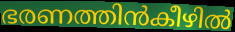
ഭരണത്തിൻകീഴിൽ